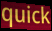
quick